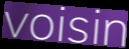
voisin